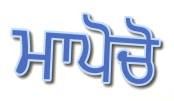
ਮਾਪੋਚੋ